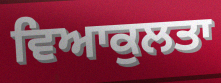
ਵਿਆਕੁਲਤਾ